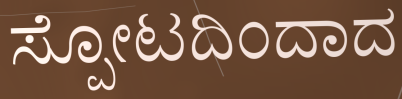
ಸ್ಪೋಟದಿಂದಾದ